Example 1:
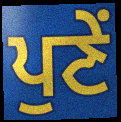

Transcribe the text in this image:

ਪੁਣੇਂ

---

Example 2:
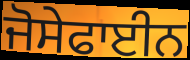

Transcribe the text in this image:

ਜੋਸੇਫਾਈਨ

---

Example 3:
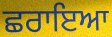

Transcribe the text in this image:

ਛਰਾਇਆ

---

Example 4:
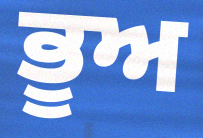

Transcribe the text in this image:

ਭੂਅ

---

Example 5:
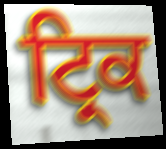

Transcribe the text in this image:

ਟ੍ਰਿਕ